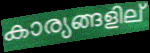
കാര്യങ്ങളില്